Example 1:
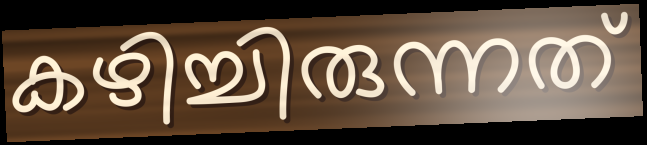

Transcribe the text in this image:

കഴിച്ചിരുന്നത്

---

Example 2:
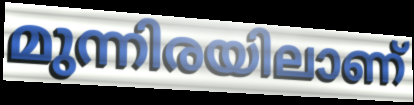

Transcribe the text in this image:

മുന്നിരയിലാണ്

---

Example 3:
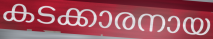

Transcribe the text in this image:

കടക്കാരനായ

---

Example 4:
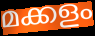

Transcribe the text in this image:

മക്കളം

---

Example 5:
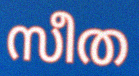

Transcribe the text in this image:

സീത